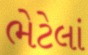
ભેટેલાં